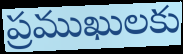
ప్రముఖులకు